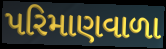
પરિમાણવાળા